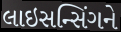
લાઇસન્સિંગને